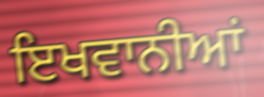
ਇਖਵਾਨੀਆਂ